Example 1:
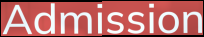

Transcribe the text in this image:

Admission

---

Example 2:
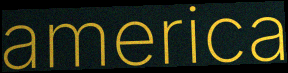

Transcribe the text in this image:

america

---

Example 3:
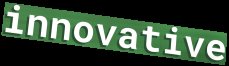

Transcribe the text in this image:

innovative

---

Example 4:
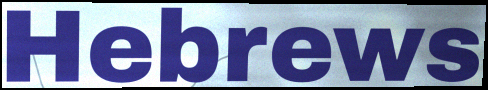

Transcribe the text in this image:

Hebrews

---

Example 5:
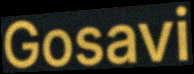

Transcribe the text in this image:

Gosavi